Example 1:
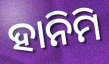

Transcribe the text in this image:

ହାନିମି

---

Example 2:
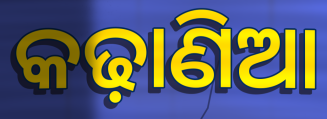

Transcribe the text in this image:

କଢ଼ାଣିଆ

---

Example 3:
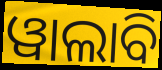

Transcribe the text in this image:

ୱାଲାବି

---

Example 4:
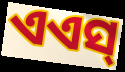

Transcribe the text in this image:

ଏଏସ୍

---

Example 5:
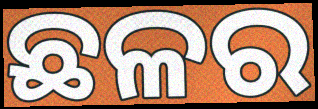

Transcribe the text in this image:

ଛଳର